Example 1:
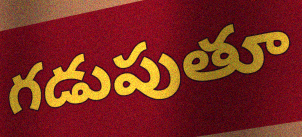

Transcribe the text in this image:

గడుపుతూ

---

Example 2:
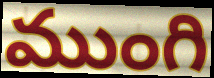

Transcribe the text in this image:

ముంగి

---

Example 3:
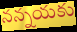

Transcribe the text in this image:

నన్నయకు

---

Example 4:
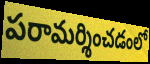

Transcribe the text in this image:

పరామర్శించడంలో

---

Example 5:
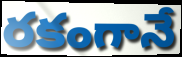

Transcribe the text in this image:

రకంగానే